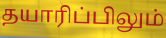
தயாரிப்பிலும்